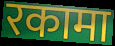
रकामा